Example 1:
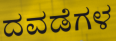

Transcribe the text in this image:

ದವಡೆಗಳ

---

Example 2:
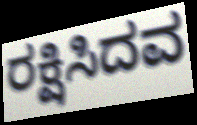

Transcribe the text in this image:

ರಕ್ಷಿಸಿದವ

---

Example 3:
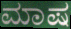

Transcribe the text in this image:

ಮಾಷ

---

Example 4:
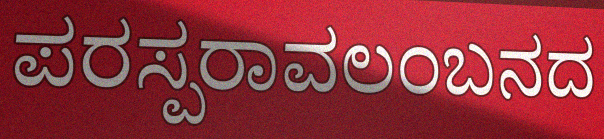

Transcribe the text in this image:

ಪರಸ್ಪರಾವಲಂಬನದ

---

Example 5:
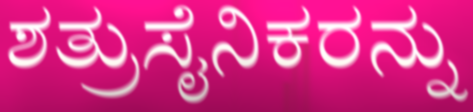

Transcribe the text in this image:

ಶತ್ರುಸೈನಿಕರನ್ನು